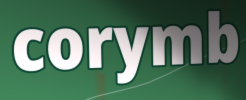
corymb